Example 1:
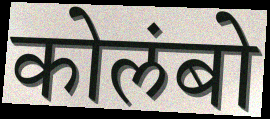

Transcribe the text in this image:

कोलंबो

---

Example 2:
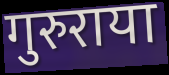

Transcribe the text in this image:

गुरुराया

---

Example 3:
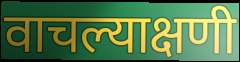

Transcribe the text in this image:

वाचल्याक्षणी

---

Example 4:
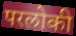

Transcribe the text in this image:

परलोकी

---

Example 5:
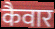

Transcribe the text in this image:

कैवार